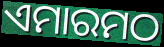
ଏମାରମଠ